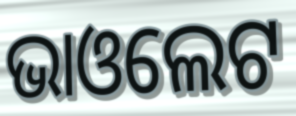
ଭାଓଲେଟ